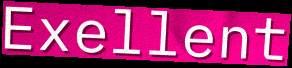
Exellent